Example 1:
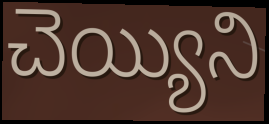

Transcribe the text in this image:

చెయ్యిని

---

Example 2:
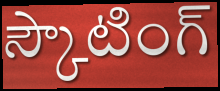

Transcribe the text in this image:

స్కౌటింగ్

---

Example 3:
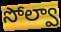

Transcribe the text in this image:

సోల్వా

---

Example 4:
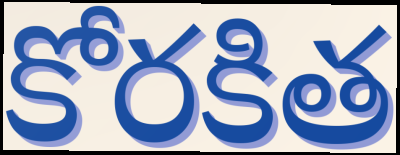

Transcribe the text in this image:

కోరకిత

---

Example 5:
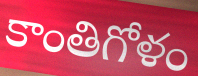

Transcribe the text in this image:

కాంతిగోళం